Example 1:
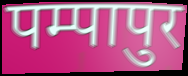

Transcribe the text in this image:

पम्पापुर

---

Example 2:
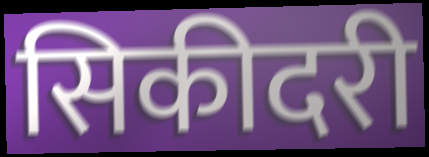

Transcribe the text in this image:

सिकीदरी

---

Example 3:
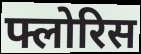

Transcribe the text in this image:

फ्लोरिस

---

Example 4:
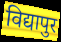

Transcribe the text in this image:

विद्यापुर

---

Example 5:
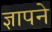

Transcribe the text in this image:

ज्ञापने